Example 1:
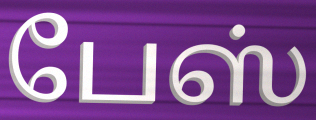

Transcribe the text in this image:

பேஸ்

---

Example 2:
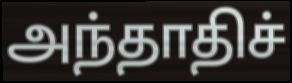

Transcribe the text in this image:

அந்தாதிச்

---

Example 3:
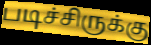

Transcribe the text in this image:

படிச்சிருக்கு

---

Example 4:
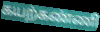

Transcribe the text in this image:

கயற்கண்ணி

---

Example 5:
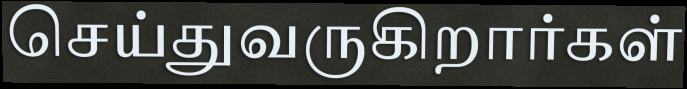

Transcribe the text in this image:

செய்துவருகிறார்கள்